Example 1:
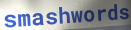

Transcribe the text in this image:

smashwords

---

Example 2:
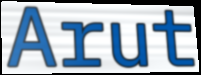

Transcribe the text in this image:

Arut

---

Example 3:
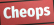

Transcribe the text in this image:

Cheops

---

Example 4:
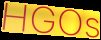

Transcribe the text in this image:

HGOs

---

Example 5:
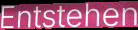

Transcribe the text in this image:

Entstehen